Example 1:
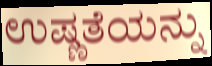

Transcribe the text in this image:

ಉಷ್ಣತೆಯನ್ನು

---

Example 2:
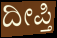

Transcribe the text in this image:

ದೀಪ್ತಿ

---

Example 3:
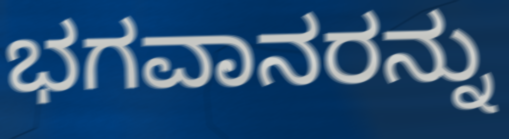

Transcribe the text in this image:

ಭಗವಾನರನ್ನು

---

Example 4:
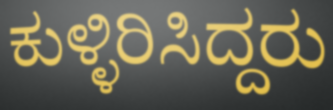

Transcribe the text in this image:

ಕುಳ್ಳಿರಿಸಿದ್ದರು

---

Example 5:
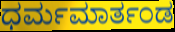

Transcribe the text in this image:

ಧರ್ಮಮಾರ್ತಂಡ